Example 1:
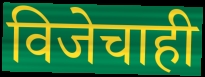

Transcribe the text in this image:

विजेचाही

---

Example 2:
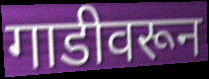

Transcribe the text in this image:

गाडीवरून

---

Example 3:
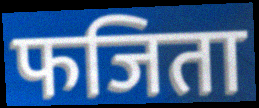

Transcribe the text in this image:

फजिता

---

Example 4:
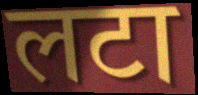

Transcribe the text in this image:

लटा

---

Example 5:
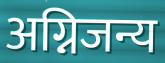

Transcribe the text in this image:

अग्निजन्य